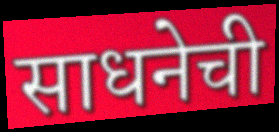
साधनेची